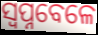
ସ୍ଵପ୍ନବେଳେ